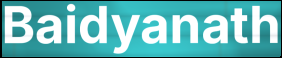
Baidyanath